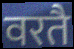
वरतै